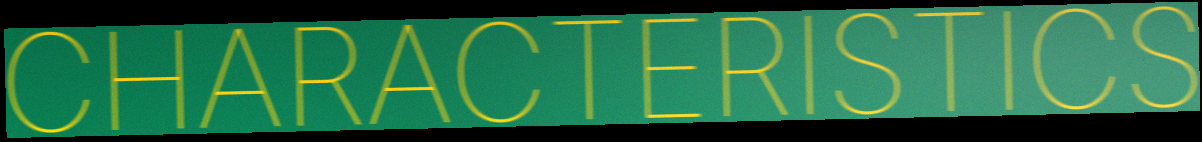
CHARACTERISTICS